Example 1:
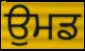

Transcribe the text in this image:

ਉਮਡ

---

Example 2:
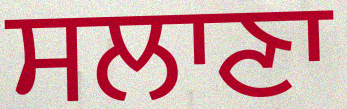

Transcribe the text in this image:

ਸਲਾਣਾ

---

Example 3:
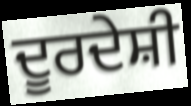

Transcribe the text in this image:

ਦੂਰਦੇਸ਼ੀ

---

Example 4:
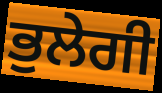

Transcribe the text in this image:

ਭੁਲੇਗੀ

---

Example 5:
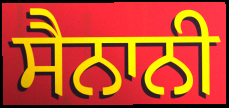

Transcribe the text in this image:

ਸੈਨਾਨੀ